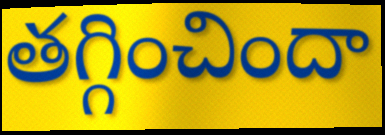
తగ్గించిందా